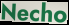
Necho